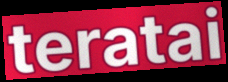
teratai